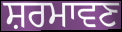
ਸ਼ਰਮਾਵਣ